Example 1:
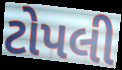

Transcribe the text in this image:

ટોપલી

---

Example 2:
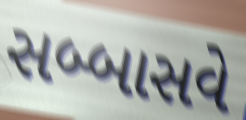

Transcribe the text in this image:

સબ્બાસવે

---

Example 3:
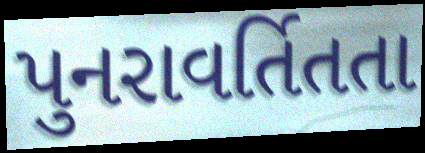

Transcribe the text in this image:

પુનરાવર્તિતતા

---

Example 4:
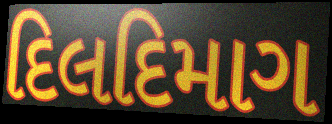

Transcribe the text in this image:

દિલદિમાગ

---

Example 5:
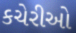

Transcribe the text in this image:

કચેરીઓ